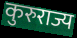
कुरुराज्य